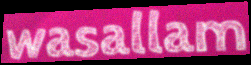
wasallam